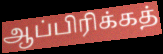
ஆப்பிரிக்கத்